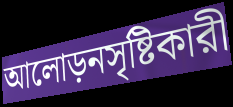
আলোড়নসৃষ্টিকারী